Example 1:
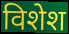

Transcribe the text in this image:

विशेश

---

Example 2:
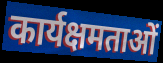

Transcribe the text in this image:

कार्यक्षमताओं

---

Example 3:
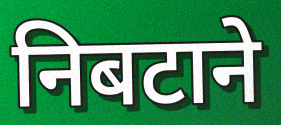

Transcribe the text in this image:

निबटाने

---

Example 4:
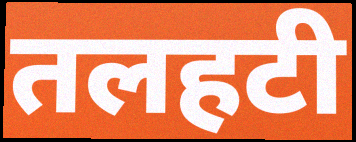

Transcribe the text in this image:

तलहटी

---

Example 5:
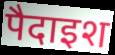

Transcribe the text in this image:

पैदाइश